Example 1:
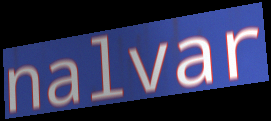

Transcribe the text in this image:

nalvar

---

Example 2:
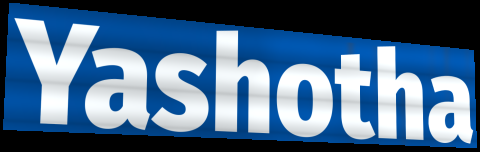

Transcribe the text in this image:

Yashotha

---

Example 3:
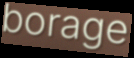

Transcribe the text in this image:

borage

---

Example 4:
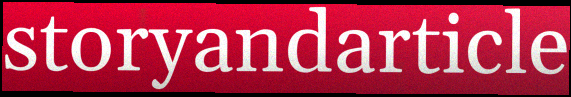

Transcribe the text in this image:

storyandarticle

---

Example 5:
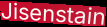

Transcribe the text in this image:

Jisenstain